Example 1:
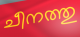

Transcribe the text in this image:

ചീനത്തു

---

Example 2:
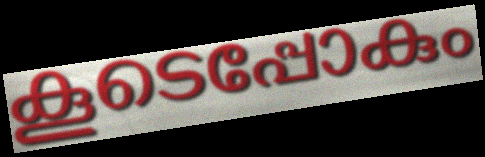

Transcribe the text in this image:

കൂടെപ്പോകും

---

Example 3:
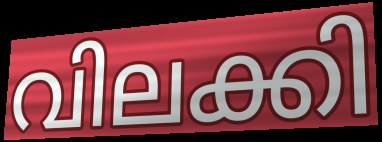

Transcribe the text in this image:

വിലക്കി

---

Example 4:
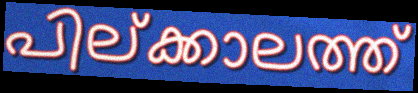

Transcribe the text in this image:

പില്ക്കാലത്ത്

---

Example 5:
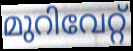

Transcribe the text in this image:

മുറിവേറ്റ്